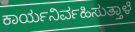
ಕಾರ್ಯನಿರ್ವಹಿಸುತ್ತಾಳೆ